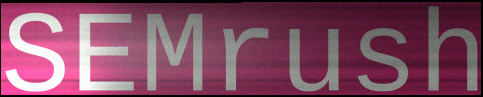
SEMrush